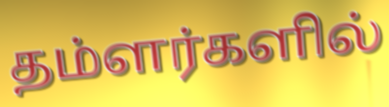
தம்ளர்களில்